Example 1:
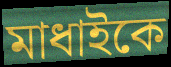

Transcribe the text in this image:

মাধাইকে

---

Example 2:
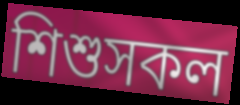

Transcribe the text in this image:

শিশুসকল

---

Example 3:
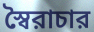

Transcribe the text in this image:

স্বৈরাচার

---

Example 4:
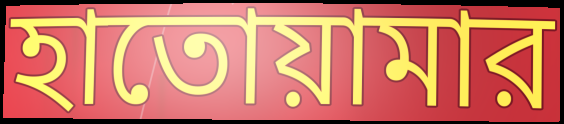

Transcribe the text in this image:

হাতোয়ামার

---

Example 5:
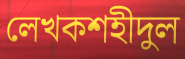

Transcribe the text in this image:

লেখকশহীদুল